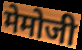
मेमोजी